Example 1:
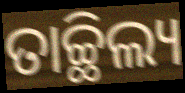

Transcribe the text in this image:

ତାଚ୍ଛିଲ୍ୟ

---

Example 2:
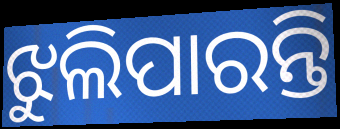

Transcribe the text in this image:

ଝୁଲିପାରନ୍ତି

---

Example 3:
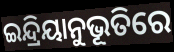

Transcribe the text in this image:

ଇନ୍ଦ୍ରିୟାନୁଭୂତିରେ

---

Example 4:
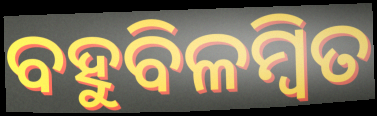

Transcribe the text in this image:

ବହୁବିଳମ୍ବିତ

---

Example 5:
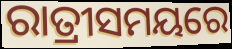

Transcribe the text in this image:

ରାତ୍ରୀସମୟରେ